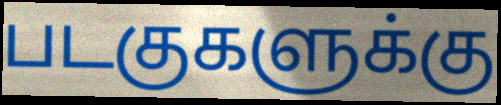
படகுகளுக்கு